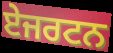
ਏਜਰਟਨ